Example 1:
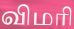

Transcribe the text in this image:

விமரி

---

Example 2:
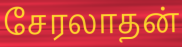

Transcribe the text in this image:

சேரலாதன்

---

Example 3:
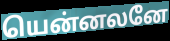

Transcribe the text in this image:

யென்னலனே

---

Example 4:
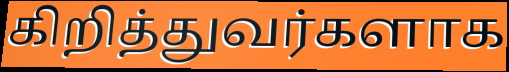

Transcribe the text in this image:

கிறித்துவர்களாக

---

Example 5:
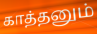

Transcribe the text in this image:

காத்தனும்